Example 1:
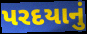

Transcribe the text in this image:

પરદયાનું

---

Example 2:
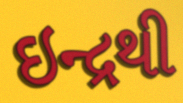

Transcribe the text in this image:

ઇન્દ્રથી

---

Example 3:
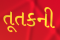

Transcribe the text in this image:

તૂતકની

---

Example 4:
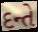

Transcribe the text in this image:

દન્તે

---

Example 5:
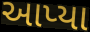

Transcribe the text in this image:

આપ્યા